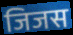
जिजस